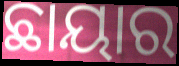
ଛାୟାର